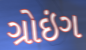
ગ્રોઇંગ